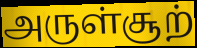
அருள்சூற்